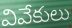
వివేకులు